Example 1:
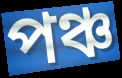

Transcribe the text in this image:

পঞ্চ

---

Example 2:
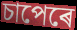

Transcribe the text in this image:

চাপেৰে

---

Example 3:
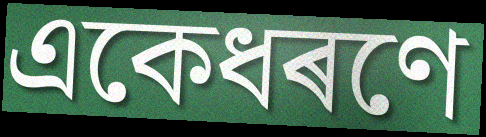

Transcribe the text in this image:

একেধৰণে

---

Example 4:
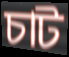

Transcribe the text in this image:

চাট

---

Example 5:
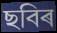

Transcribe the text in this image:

ছবিৰ